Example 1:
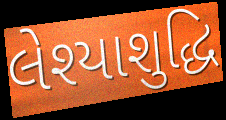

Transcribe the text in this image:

લેશ્યાશુદ્ધિ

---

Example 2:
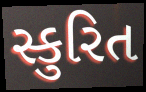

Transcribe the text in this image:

સ્કુરિત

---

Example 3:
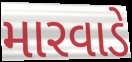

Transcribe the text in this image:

મારવાડે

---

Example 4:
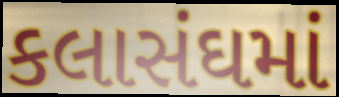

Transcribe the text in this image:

કલાસંઘમાં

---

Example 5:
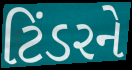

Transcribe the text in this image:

ટિંડરને